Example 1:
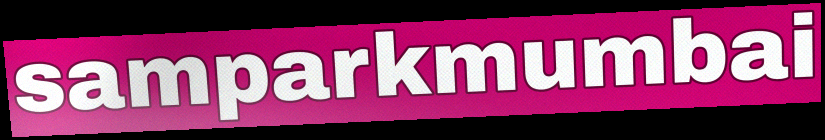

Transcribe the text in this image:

samparkmumbai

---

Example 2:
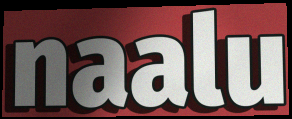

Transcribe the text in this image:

naalu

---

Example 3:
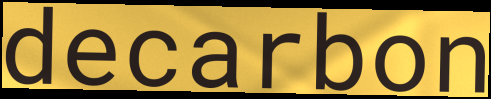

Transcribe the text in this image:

decarbon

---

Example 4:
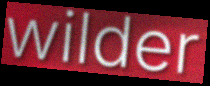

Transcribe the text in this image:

wilder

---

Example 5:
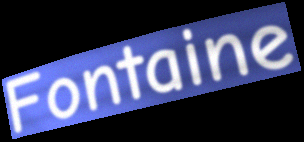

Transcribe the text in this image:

Fontaine